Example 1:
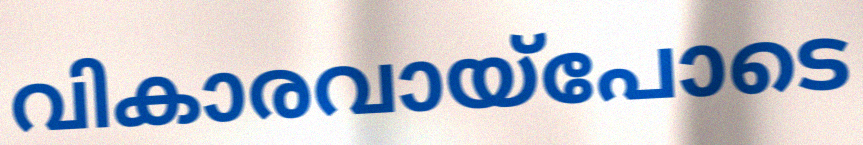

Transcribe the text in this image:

വികാരവായ്പോടെ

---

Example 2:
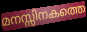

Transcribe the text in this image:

മനസ്സിനകത്തെ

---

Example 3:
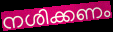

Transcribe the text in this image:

നശിക്കണം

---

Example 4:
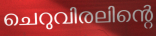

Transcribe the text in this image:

ചെറുവിരലിന്റെ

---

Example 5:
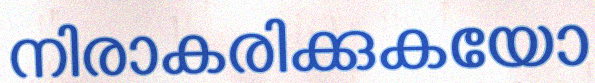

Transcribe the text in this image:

നിരാകരിക്കുകയോ